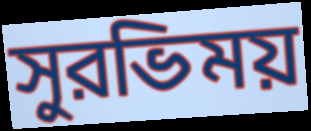
সুরভিময়